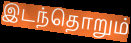
இடந்தொறும்